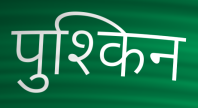
पुश्किन